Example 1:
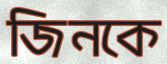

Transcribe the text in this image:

জিনকে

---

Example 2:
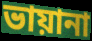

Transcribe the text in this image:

ভায়ানা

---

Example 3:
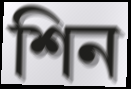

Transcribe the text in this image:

শিন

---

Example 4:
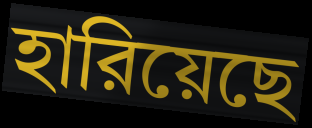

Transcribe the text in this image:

হারিয়েছে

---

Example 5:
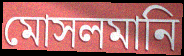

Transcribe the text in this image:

মোসলমানি